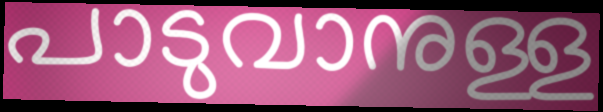
പാടുവാനുള്ള